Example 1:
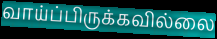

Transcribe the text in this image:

வாய்ப்பிருக்கவில்லை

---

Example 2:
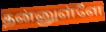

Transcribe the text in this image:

தன்னுள்ளே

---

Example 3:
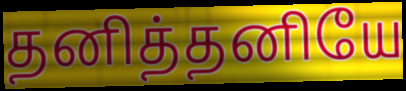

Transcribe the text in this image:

தனித்தனியே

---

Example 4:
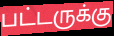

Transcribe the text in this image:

பட்டருக்கு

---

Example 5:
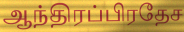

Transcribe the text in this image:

ஆந்திரப்பிரதேச